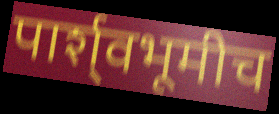
पार्श्वभूमीच